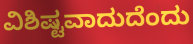
ವಿಶಿಷ್ಟವಾದುದೆಂದು